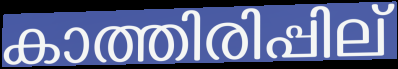
കാത്തിരിപ്പില്